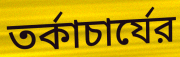
তর্কাচার্যের